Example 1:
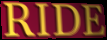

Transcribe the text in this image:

RIDE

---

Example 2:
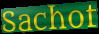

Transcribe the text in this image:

Sachot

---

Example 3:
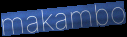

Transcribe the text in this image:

makambo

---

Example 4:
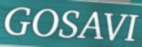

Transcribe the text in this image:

GOSAVI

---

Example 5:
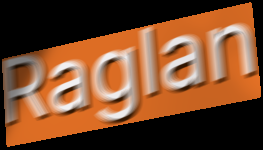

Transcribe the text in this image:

Raglan